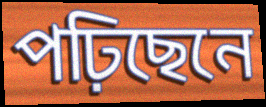
পঢ়িছেনে